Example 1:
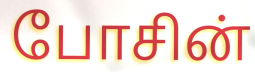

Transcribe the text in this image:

போசின்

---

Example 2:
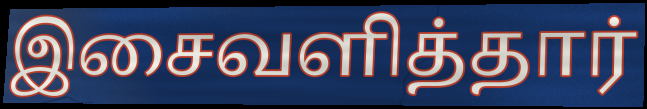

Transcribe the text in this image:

இசைவளித்தார்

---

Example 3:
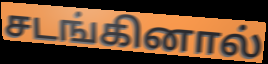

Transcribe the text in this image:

சடங்கினால்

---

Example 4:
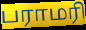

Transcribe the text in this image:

பராமரி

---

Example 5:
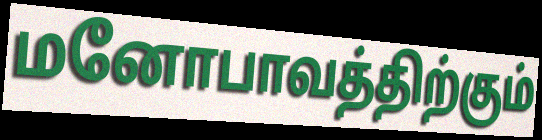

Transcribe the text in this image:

மனோபாவத்திற்கும்